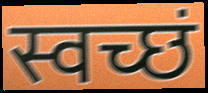
स्वच्छं